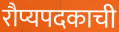
रौप्यपदकाची